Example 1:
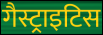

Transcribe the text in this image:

गैस्ट्राइटिस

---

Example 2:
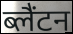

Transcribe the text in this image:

ब्लैंटन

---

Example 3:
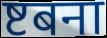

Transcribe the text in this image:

ष्टबना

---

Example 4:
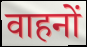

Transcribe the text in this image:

वाहनों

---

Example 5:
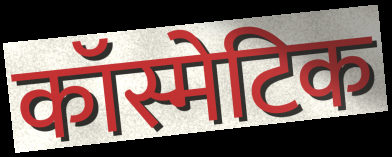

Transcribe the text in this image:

कॉस्मेटिक